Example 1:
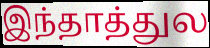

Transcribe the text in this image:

இந்தாத்துல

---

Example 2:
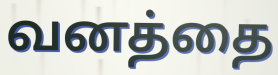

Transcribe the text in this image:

வனத்தை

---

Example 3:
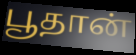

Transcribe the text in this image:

பூதான்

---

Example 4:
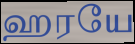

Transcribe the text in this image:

ஹரயே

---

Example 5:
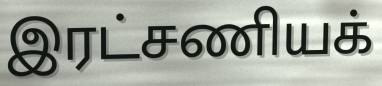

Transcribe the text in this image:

இரட்சணியக்